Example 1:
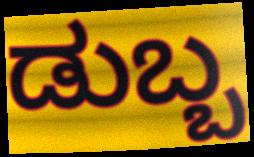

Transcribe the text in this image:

ಡುಬ್ಬ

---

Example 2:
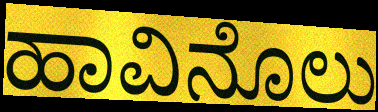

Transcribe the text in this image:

ಹಾವಿನೊಲು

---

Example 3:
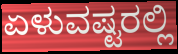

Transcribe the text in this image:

ಏಳುವಷ್ಟರಲ್ಲಿ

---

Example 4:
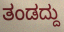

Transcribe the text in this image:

ತಂಡದ್ದು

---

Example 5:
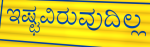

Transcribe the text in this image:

ಇಷ್ಟವಿರುವುದಿಲ್ಲ